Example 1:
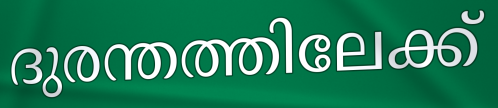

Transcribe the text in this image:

ദുരന്തത്തിലേക്ക്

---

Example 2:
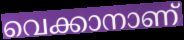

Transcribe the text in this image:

വെക്കാനാണ്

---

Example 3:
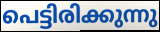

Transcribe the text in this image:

പെട്ടിരിക്കുന്നു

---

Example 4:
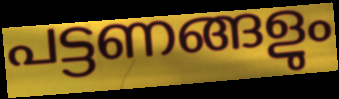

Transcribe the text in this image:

പട്ടണങ്ങളും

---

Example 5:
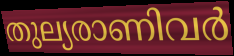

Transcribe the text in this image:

തുല്യരാണിവർ